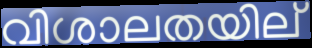
വിശാലതയില്